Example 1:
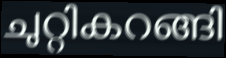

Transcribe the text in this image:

ചുറ്റികറങ്ങി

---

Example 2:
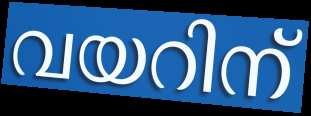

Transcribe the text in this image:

വയറിന്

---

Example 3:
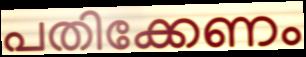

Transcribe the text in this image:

പതിക്കേണം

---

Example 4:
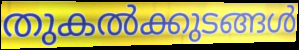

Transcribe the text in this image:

തുകൽക്കുടങ്ങൾ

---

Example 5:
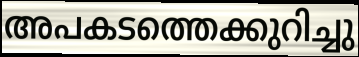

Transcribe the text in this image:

അപകടത്തെക്കുറിച്ചു